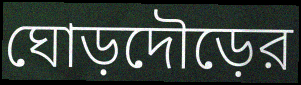
ঘোড়দৌড়ের